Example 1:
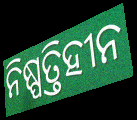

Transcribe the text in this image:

ନିଷ୍ପତ୍ତିହୀନ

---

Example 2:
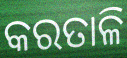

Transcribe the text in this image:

କରତାଳି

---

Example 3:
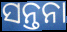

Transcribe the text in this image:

ସନ୍ତନା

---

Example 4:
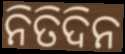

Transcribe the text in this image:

ନିତିଦିନ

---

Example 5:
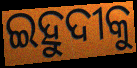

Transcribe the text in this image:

ଇହୁଦୀକୁ